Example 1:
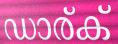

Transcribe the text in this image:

ഡാര്ക്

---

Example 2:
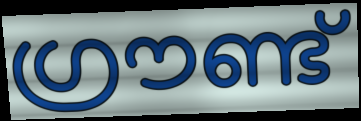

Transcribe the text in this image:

ഗ്രൗണ്ട്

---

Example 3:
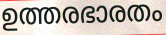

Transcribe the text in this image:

ഉത്തരഭാരതം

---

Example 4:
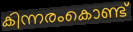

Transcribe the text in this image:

കിന്നരംകൊണ്ട്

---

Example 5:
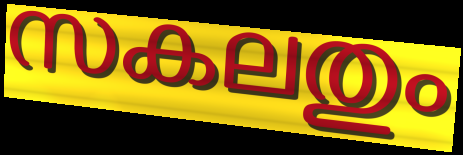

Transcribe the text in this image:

സകലതും